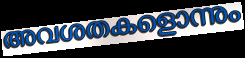
അവശതകളൊന്നും